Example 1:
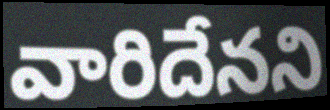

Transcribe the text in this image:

వారిదేనని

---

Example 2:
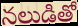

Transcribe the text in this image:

నలుడితో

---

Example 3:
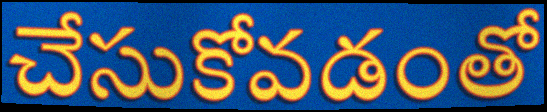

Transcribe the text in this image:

చేసుకోవడంతో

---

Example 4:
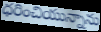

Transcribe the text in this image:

ధరించియున్నాను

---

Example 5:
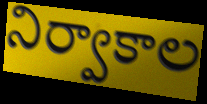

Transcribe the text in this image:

నిర్వాకాల